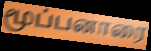
மூப்பனாரை